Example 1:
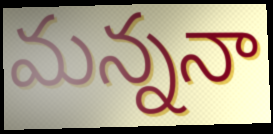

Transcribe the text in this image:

మన్ననా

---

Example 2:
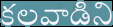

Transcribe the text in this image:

కలవాడిని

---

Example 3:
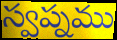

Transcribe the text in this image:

స్వప్నము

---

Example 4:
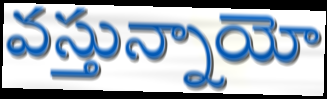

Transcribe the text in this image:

వస్తున్నాయో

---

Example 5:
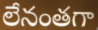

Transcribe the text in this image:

లేనంతగా